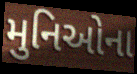
મુનિઓના